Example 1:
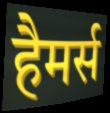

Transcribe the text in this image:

हैमर्स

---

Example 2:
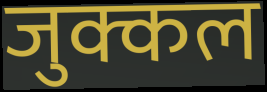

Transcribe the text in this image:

जुक्कल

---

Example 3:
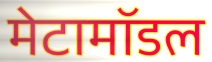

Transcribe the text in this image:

मेटामॉडल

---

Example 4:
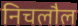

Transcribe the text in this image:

निचलौल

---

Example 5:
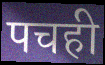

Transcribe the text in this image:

पचही